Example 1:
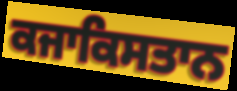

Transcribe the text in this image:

ਕਜਾਕਿਸਤਾਨ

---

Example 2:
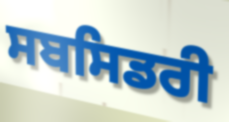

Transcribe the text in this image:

ਸਬਸਿਡਰੀ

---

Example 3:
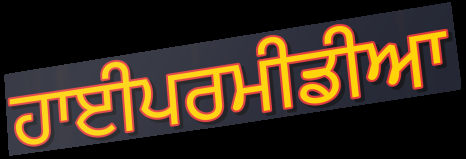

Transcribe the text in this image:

ਹਾਈਪਰਮੀਡੀਆ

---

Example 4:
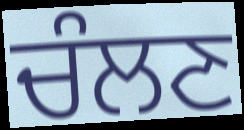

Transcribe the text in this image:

ਚੰਲਣ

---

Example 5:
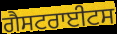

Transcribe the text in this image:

ਗੈਸਟਰਾਈਟਸ